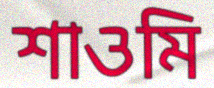
শাওমি